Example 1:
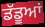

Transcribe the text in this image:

ਡੱਡੂਆਂ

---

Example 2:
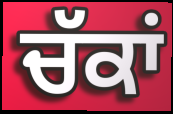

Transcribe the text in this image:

ਚੱਕਾਂ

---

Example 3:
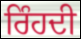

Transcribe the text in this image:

ਰਿੰਹਦੀ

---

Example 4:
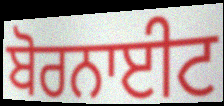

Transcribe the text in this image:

ਬੋਰਨਾਈਟ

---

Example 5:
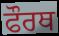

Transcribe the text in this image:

ਫੌਰਥ